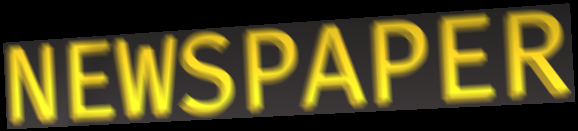
NEWSPAPER